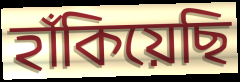
হাঁকিয়েছি